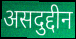
असदुद्दीन